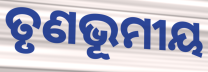
ତୃଣଭୂମୀୟ